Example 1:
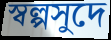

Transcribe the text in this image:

স্বল্পসুদে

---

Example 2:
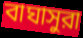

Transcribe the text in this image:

বাঘাসুরা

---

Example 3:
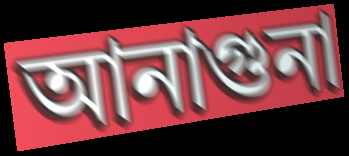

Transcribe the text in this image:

আনাগুনা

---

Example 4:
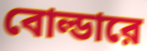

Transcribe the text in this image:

বোল্ডারে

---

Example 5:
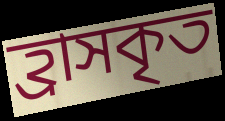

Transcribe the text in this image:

হ্রাসকৃত